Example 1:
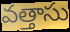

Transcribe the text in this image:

వత్తాసు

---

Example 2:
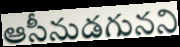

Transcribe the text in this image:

ఆసీనుడగునని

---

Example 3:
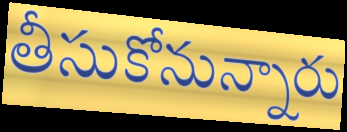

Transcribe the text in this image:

తీసుకోనున్నారు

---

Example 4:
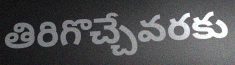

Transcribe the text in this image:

తిరిగొచ్చేవరకు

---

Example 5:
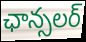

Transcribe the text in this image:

ఛాన్సలర్